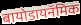
बायोडायनॅमिक